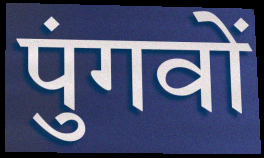
पुंगवों